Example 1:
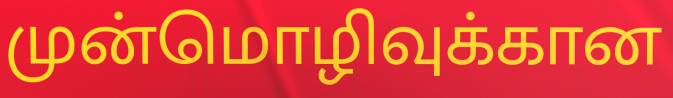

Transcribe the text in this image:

முன்மொழிவுக்கான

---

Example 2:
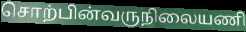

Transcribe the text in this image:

சொற்பின்வருநிலையணி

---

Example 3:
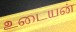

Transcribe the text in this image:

உடையன்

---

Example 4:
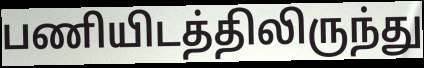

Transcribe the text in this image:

பணியிடத்திலிருந்து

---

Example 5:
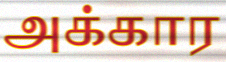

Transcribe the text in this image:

அக்கார